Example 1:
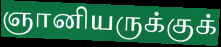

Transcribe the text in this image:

ஞானியருக்குக்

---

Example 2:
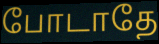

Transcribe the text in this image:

போடாதே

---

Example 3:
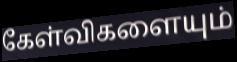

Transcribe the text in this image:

கேள்விகளையும்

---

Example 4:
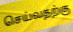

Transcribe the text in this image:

செய்வதற்கு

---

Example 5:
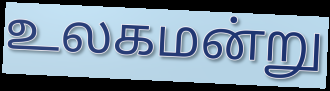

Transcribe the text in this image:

உலகமன்று